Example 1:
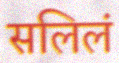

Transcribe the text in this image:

सलिलं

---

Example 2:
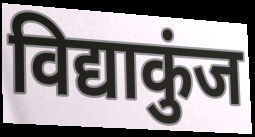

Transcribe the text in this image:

विद्याकुंज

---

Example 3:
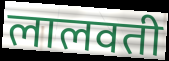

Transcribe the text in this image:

लालवती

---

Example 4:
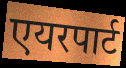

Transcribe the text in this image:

एयरपार्ट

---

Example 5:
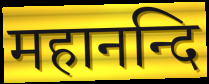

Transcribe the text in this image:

महानन्दि